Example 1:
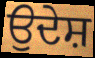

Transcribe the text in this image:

ਉਦੇਸ਼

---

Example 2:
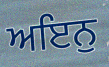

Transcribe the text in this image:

ਅਇਨੁ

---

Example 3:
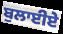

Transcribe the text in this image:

ਬੁਲਾਈਏ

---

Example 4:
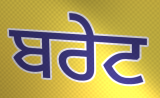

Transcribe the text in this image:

ਬਰੇਟ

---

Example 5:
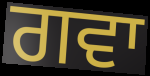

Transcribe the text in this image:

ਗਵਾ